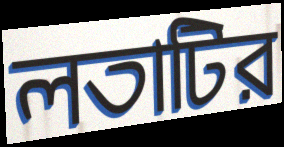
লতাটির